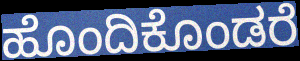
ಹೊಂದಿಕೊಂಡರೆ